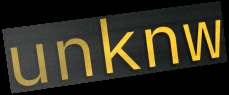
unknw